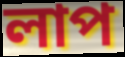
লাপ